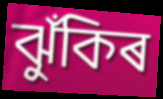
ঝুঁকিৰ